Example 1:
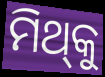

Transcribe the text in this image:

ମିଥ୍‍କୁ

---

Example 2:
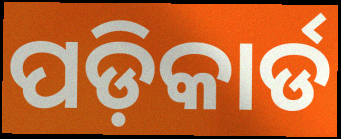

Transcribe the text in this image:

ପଡ଼ିକାର୍ଡ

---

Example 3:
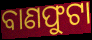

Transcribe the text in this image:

ବାଣଫୁଟା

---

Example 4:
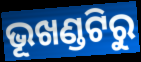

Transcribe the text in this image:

ଭୂଖଣ୍ଡଟିରୁ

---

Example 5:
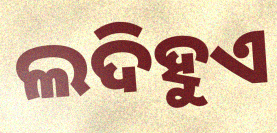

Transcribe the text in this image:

ଲଦିହୁଏ